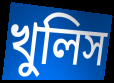
খুলিস